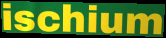
ischium